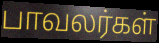
பாவலர்கள்